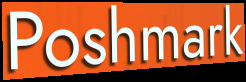
Poshmark